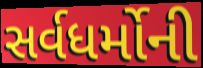
સર્વધર્મોની